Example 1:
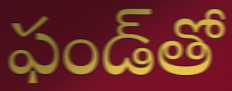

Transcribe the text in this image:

ఫండ్‌తో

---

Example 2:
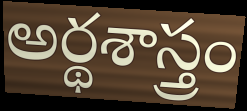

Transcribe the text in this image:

అర్థశాస్త్రం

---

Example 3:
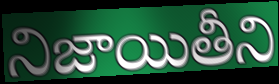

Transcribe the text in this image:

నిజాయితీని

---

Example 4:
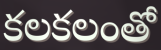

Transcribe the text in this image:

కలకలంతో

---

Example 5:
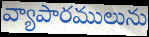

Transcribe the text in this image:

వ్యాపారములును